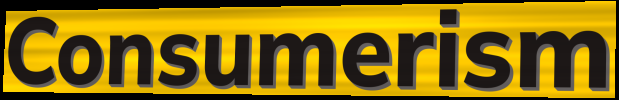
Consumerism